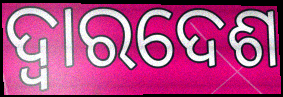
ଦ୍ୱାରଦେଶ